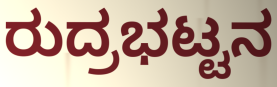
ರುದ್ರಭಟ್ಟನ